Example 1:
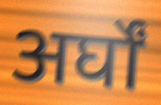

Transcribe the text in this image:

अर्घों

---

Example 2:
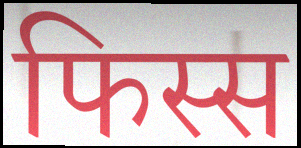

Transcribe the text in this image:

फिस्स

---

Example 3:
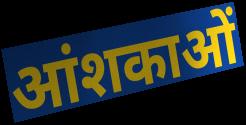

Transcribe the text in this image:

आंशकाओं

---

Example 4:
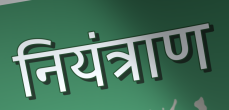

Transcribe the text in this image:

नियंत्राण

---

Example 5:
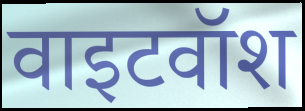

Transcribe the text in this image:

वाइटवॉश